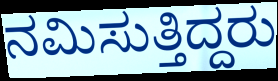
ನಮಿಸುತ್ತಿದ್ದರು